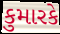
કુમારકે